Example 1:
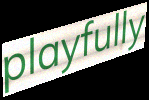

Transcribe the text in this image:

playfully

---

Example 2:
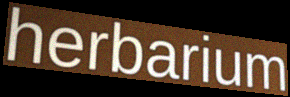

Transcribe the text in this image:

herbarium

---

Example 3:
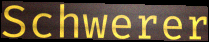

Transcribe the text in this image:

Schwerer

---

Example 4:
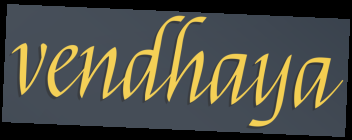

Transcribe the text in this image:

vendhaya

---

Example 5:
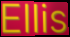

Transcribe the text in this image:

Ellis